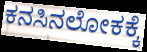
ಕನಸಿನಲೋಕಕ್ಕೆ